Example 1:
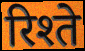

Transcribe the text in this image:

रिश्ते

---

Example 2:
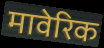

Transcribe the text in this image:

मावेरिक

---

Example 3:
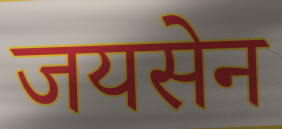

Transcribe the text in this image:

जयसेन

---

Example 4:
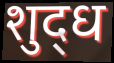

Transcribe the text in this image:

शुद्ध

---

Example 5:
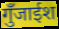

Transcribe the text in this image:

गुँजाईश